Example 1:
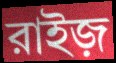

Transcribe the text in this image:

রাইজ়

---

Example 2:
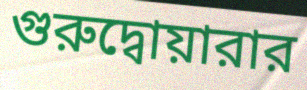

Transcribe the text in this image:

গুরুদ্বোয়ারার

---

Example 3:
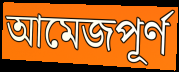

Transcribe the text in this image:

আমেজপূর্ণ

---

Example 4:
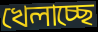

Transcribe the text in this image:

খেলাচ্ছে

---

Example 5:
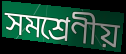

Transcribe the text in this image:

সমশ্রেণীয়